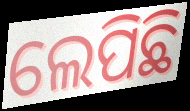
ଲେପିଛି